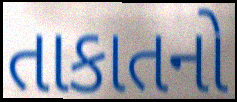
તાકાતનો